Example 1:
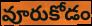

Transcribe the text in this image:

వూరుకోడం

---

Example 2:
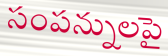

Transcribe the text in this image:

సంపన్నులపై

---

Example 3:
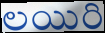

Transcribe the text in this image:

లయిరి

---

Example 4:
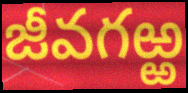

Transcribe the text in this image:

జీవగఱ్ఱ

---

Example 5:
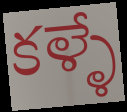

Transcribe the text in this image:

కళ్ళే